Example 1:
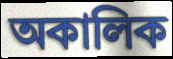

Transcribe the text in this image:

অকালিক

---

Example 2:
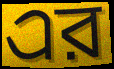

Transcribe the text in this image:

এর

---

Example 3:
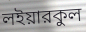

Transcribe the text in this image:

লইয়ারকুল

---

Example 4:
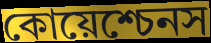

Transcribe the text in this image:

কোয়েশ্চেনস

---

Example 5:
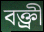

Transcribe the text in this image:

বক্ত্রী